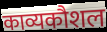
काव्यकौशल